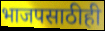
भाजपसाठीही